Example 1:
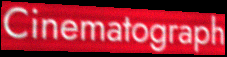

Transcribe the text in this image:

Cinematograph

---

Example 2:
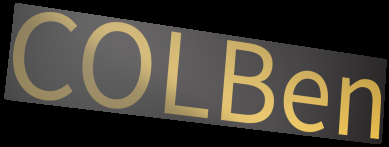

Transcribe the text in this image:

COLBen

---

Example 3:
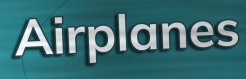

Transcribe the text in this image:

Airplanes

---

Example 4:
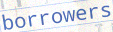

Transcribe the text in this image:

borrowers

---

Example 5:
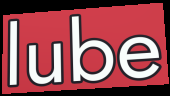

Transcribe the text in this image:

lube